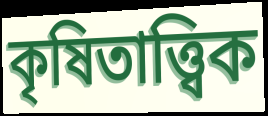
কৃষিতাত্ত্বিক